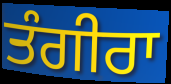
ਤੰਗੀਰਾ